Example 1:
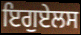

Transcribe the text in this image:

ਇਗੁਏਲਸ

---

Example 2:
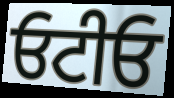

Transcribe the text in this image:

ਓਟੀਓ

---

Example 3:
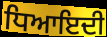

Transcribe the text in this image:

ਧਿਆਇਦੀ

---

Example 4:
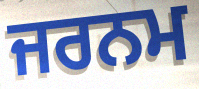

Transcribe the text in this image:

ਜਰਨਮ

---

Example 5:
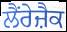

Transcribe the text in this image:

ਲੈਂਰੇਜ਼ੈਕ